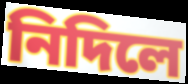
নিদিলে